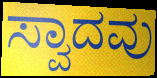
ಸ್ವಾದವು